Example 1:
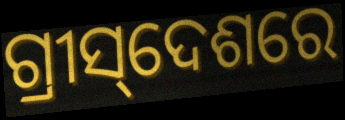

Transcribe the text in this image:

ଗ୍ରୀସ୍‌ଦେଶରେ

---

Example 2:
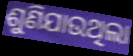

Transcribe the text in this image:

ଶୁଣିଯାଉଥିଲା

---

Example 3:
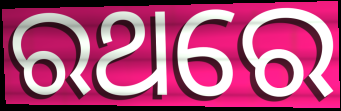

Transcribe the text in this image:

ରଥରେ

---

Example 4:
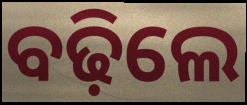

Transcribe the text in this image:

ବଢ଼ିଲେ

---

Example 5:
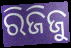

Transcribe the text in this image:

ରିଜିଜୁ